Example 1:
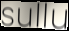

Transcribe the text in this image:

sullu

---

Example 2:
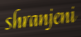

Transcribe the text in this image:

shranjeni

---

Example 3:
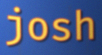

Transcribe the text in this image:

josh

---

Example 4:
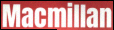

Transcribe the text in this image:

Macmillan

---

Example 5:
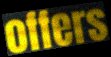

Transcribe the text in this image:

offers